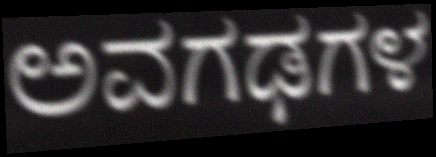
ಅವಗಢಗಳ